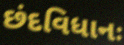
છંદવિધાનઃ